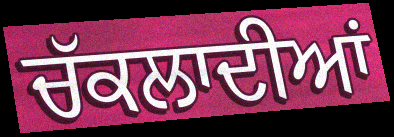
ਚੱਕਲਾਦੀਆਂ